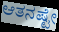
ಆತನಷ್ಟೇ